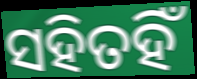
ସହିତହିଁ